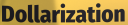
Dollarization